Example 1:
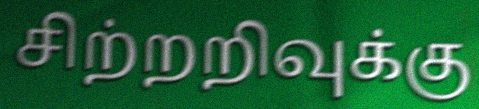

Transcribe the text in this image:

சிற்றறிவுக்கு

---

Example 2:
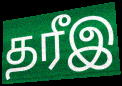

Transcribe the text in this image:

தரீஇ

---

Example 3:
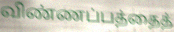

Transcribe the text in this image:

விண்ணப்பத்தைத்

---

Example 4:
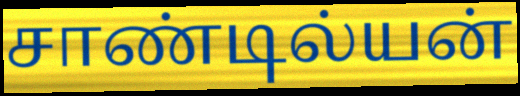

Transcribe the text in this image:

சாண்டில்யன்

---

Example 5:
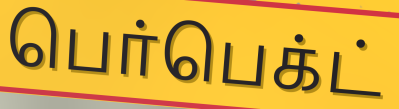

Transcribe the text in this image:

பெர்பெக்ட்